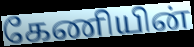
கேணியின்